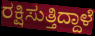
ರಕ್ಷಿಸುತ್ತಿದ್ದಾಳೆ